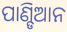
ପାଣ୍ଡିଆନ